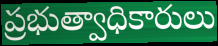
ప్రభుత్వాధికారులు